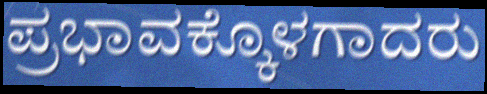
ಪ್ರಭಾವಕ್ಕೊಳಗಾದರು